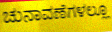
ಚುನಾವಣೆಗಳಲ್ಲೂ